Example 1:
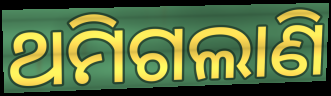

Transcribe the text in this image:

ଥମିଗଲାଣି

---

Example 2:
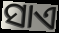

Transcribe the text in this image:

ସାଏ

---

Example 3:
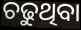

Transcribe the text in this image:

ଚଢୁଥିବା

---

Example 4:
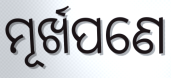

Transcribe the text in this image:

ମୂର୍ଖପଣେ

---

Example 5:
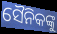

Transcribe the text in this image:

ସୈନିକଙ୍କୁ